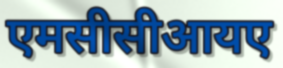
एमसीसीआयए